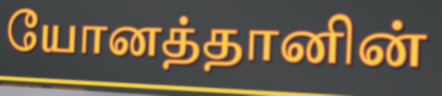
யோனத்தானின்